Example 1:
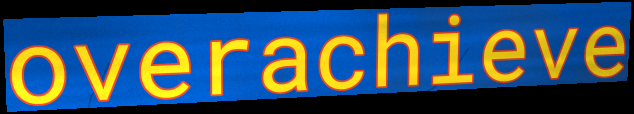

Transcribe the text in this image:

overachieve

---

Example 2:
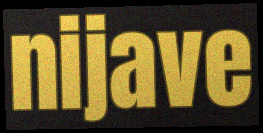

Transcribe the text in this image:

nijave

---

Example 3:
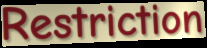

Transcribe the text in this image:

Restriction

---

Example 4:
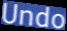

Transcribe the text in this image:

Undo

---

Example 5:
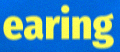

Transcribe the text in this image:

earing